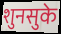
शुनसुके